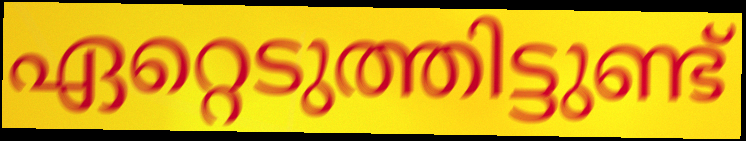
ഏറ്റെടുത്തിട്ടുണ്ട്